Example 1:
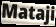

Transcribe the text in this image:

Mataji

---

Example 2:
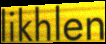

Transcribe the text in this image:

likhlen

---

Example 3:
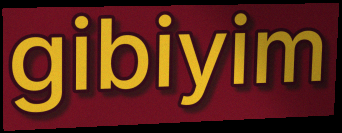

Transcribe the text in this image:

gibiyim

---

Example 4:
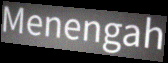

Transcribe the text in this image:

Menengah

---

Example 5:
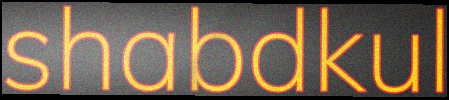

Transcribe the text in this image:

shabdkul